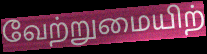
வேற்றுமையிற்